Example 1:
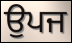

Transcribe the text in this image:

ਉਪਜ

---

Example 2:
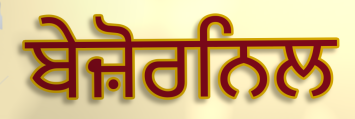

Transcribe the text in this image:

ਬੇਜ਼ੋਰਨਿਲ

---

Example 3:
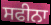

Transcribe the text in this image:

ਸਫੀਨਾ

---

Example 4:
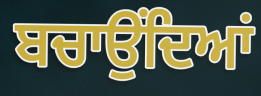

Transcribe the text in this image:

ਬਚਾਉਂਦਿਆਂ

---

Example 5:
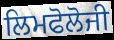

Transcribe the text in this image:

ਲਿਮਫੋਲੋਜੀ